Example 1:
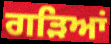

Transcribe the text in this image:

ਗੜਿਆਂ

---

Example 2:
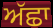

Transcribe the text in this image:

ਅੱਛਾ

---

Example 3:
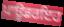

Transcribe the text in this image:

ਪਾਊਡਰਇਹ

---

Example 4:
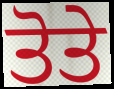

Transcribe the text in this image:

ਤੋਤੇ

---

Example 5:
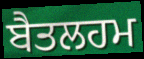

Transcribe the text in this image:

ਬੈਤਲਹਮ